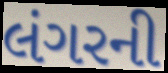
લંગરની